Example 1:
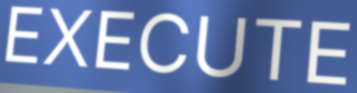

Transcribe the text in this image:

EXECUTE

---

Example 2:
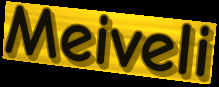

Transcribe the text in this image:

Meiveli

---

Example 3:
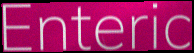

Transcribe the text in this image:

Enteric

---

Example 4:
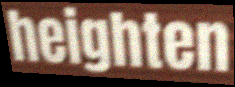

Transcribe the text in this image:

heighten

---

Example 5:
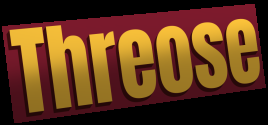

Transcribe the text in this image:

Threose